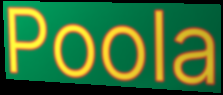
Poola